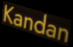
Kandan